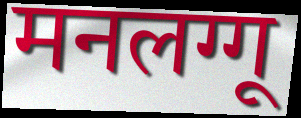
मनलग्गू